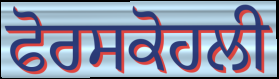
ਫੋਰਸਕੋਹਲੀ